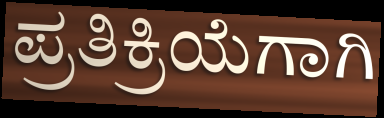
ಪ್ರತಿಕ್ರಿಯೆಗಾಗಿ